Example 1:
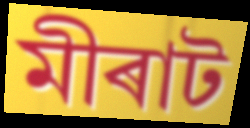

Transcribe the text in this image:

মীৰাট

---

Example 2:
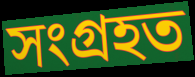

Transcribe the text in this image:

সংগ্ৰহত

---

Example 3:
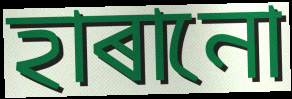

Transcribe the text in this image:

হাৰানো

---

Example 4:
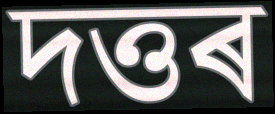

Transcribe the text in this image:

দত্তৰ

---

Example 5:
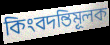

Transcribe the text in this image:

কিংবদন্তিমূলক